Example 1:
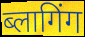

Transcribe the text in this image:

ब्लागिंग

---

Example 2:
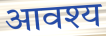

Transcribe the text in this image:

आवश्य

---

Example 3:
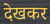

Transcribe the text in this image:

देखकर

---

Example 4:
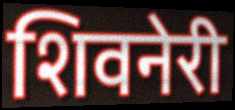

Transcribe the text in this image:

शिवनेरी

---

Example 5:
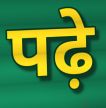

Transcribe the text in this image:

पढ़े